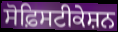
ਸੋਫ਼ਿਸਟੀਕੇਸ਼ਨ